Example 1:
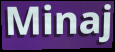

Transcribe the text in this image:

Minaj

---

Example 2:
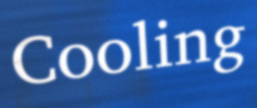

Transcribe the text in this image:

Cooling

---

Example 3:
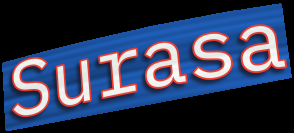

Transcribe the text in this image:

Surasa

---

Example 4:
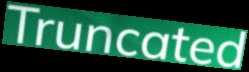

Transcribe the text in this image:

Truncated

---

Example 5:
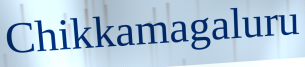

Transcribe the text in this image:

Chikkamagaluru